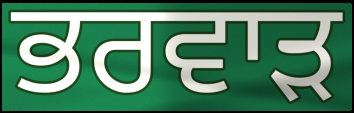
ਭਰਵਾੜ